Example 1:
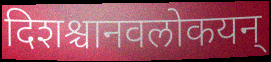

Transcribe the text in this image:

दिशश्चानवलोकयन्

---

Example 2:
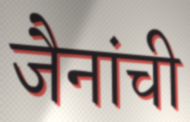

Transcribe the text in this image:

जैनांची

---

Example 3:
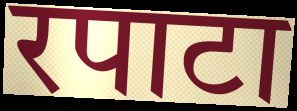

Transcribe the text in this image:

रपाटा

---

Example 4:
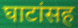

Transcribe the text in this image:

घाटांसह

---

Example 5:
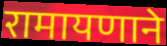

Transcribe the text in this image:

रामायणाने